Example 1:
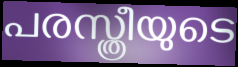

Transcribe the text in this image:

പരസ്ത്രീയുടെ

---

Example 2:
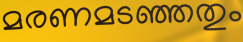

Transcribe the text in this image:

മരണമടഞ്ഞതും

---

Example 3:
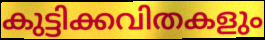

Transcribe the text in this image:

കുട്ടിക്കവിതകളും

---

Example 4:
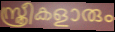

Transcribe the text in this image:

സ്ത്രീകളാരും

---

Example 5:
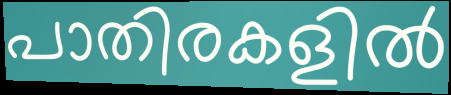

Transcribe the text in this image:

പാതിരകളിൽ